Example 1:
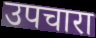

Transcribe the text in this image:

उपचारा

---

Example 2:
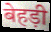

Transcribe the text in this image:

बेहड़ी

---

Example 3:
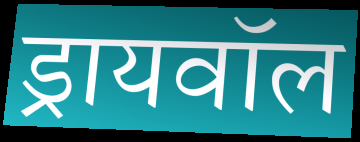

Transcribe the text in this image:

ड्रायवॉल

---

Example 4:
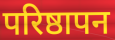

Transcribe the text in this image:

परिष्ठापन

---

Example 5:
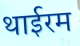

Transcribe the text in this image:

थाईरम